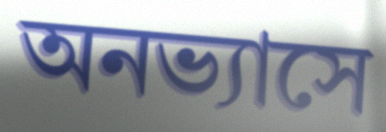
অনভ্যাসে